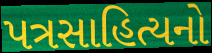
પત્રસાહિત્યનો